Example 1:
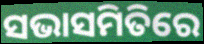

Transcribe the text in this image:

ସଭାସମିତିରେ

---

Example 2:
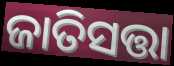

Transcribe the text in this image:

ଜାତିସତ୍ତା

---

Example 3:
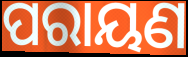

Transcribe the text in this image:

ପରାୟଣ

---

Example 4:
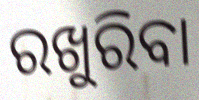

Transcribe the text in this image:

ରଖୁରିବା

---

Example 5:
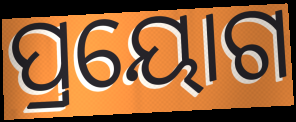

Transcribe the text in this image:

ପ୍ରୟୋଗ